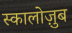
स्कालोज़ुब